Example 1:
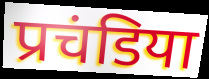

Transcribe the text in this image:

प्रचंडिया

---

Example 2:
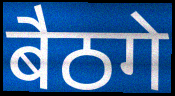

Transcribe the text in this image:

बैठगे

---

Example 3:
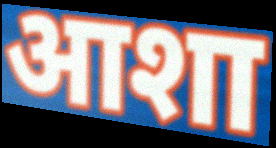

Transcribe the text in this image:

आशा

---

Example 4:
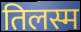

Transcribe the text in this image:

तिलस्म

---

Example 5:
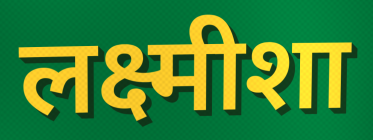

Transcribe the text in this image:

लक्ष्मीशा